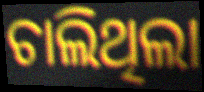
ଚାଲିଥିଲା